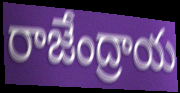
రాజేంద్రాయ